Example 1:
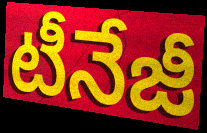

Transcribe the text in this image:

టీనేజీ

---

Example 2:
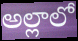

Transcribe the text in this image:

అల్లాలో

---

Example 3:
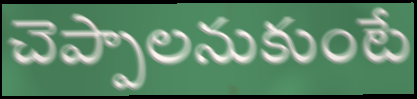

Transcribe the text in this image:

చెప్పాలనుకుంటే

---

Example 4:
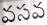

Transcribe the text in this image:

వసవ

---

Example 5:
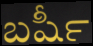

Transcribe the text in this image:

బషీర్‍